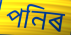
পনিৰ